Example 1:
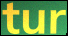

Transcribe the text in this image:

tur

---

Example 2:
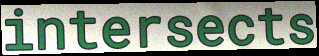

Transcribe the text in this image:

intersects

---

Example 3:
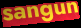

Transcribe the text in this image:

sangun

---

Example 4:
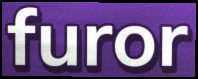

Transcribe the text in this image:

furor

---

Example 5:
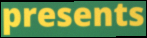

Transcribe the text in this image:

presents